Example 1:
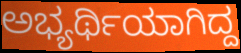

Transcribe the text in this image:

ಅಭ್ಯರ್ಥಿಯಾಗಿದ್ದ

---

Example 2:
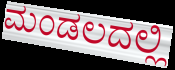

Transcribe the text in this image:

ಮಂಡಲದಲ್ಲಿ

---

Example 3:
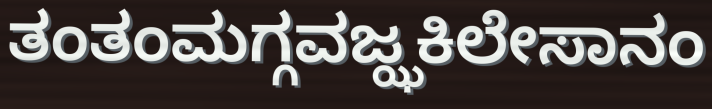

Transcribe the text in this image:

ತಂತಂಮಗ್ಗವಜ್ಝಕಿಲೇಸಾನಂ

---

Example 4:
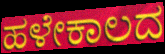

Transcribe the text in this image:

ಹಳೇಕಾಲದ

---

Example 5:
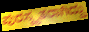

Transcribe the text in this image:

ಪುರಸ್ಕೃತರಾಗಿದ್ದು